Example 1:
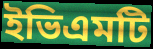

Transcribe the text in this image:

ইভিএমটি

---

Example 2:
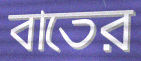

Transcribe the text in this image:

বাতের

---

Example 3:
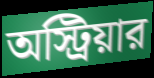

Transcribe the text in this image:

অস্ট্রিয়ার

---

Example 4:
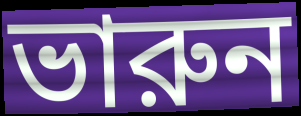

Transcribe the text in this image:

ভারুন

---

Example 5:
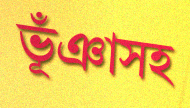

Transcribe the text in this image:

ভূঁঞাসহ